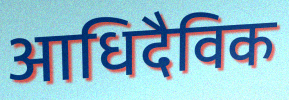
आधिदैविक